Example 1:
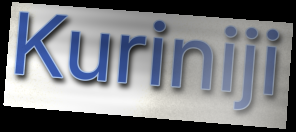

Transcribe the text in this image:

Kuriniji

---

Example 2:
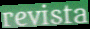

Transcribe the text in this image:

revista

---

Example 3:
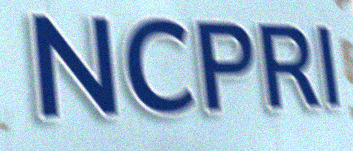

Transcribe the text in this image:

NCPRI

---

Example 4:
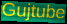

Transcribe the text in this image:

Gujtube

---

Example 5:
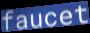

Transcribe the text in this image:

faucet